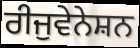
ਰੀਜੁਵੇਨੇਸ਼ਨ